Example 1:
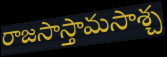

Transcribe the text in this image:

రాజసాస్తామసాశ్చ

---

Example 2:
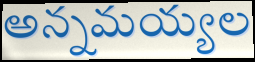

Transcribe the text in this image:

అన్నమయ్యల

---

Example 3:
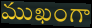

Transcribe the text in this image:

ముఖంగా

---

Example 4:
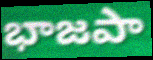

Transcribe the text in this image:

భాజపా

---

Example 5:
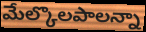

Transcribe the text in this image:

మేల్కొలపాలన్నా